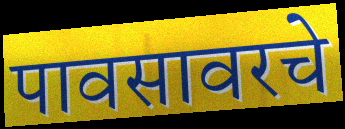
पावसावरचे